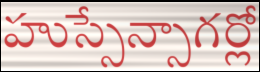
హుస్సేన్సాగర్లో